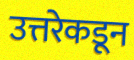
उत्तरेकडून